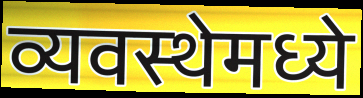
व्यवस्थेमध्ये